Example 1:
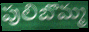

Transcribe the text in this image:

పులిబొమ్మ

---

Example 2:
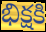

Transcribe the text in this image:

భిక్షకి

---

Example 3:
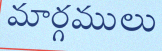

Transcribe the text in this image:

మార్గములు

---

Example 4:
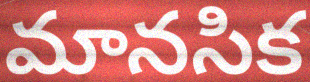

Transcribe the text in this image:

మానసిక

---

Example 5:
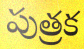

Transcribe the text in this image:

పుత్రక